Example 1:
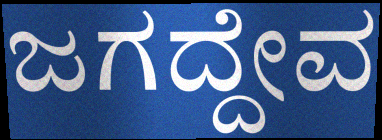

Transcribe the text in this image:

ಜಗದ್ದೇವ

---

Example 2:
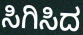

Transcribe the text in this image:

ಸಿಗಿಸಿದ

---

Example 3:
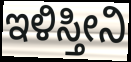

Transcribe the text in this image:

ಇಳಿಸ್ತೀನಿ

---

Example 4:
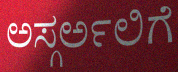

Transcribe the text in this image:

ಅಸ್ಗರ್ಅಲಿಗೆ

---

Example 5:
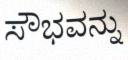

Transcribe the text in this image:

ಸೌಭವನ್ನು